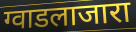
ग्वाडलाजारा